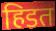
हिडत